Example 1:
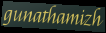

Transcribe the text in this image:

gunathamizh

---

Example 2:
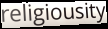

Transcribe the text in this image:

religiousity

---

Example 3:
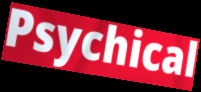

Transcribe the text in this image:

Psychical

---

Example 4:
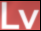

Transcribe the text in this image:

Lv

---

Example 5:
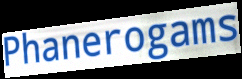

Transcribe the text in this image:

Phanerogams